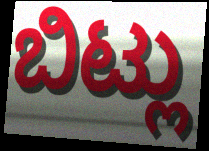
ಬಿಟ್ಲು